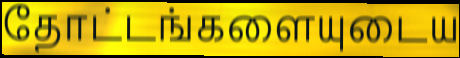
தோட்டங்களையுடைய